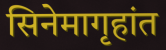
सिनेमागृहांत